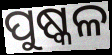
ପୁଷ୍କଳ